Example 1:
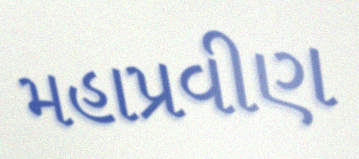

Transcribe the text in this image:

મહાપ્રવીણ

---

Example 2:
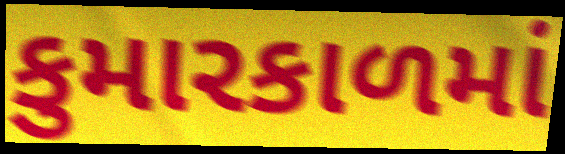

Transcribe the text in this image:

કુમારકાળમાં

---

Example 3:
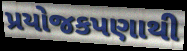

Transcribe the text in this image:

પ્રયોજકપણાથી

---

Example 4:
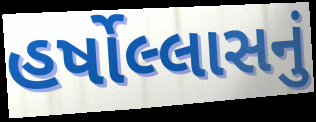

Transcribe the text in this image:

હર્ષોલ્લાસનું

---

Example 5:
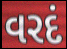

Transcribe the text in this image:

વરદં